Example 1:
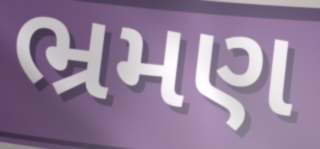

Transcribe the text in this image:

ભ્રમણ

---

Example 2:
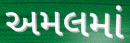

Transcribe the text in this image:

અમલમાં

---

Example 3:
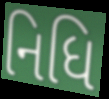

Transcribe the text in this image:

નિધિ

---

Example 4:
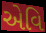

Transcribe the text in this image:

એવિ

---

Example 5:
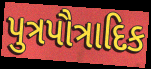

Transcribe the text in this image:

પુત્રપૌત્રાદિક